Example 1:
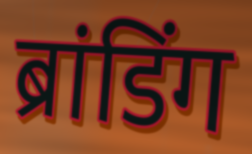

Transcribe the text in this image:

ब्रांडिंग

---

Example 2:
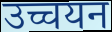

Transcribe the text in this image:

उच्चयन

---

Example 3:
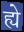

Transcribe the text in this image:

ह्ये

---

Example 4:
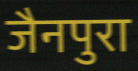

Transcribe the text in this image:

जैनपुरा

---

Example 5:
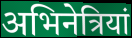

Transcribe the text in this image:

अभिनेत्रियां